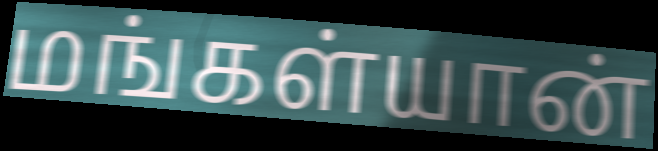
மங்கள்யான்